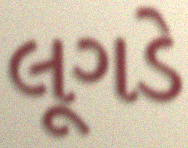
લૂગડે